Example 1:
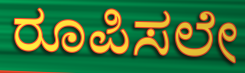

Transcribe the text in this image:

ರೂಪಿಸಲೇ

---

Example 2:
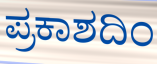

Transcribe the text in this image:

ಪ್ರಕಾಶದಿಂ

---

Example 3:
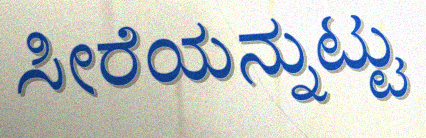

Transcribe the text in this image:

ಸೀರೆಯನ್ನುಟ್ಟು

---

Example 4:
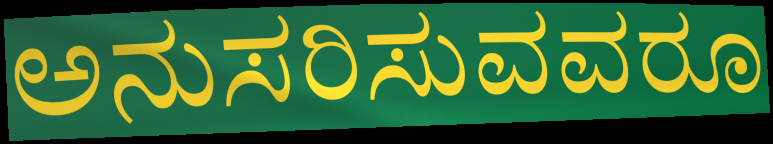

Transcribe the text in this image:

ಅನುಸರಿಸುವವರೂ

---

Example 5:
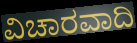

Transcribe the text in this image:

ವಿಚಾರವಾದಿ